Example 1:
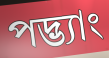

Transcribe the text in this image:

পদ্ভ্যাং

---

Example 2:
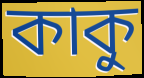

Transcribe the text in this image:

কাকু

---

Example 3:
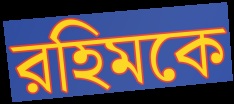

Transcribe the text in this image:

রহিমকে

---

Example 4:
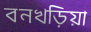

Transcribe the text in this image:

বনখড়িয়া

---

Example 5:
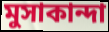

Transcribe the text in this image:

মুসাকান্দা